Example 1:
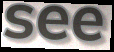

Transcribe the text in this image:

see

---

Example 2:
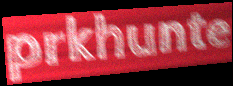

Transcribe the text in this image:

prkhunte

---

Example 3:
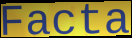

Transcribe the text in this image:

Facta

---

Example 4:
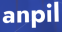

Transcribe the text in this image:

anpil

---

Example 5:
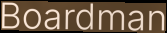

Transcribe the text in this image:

Boardman